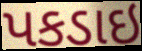
પકડાઇ